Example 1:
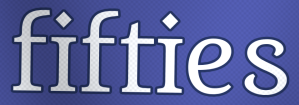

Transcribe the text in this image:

fifties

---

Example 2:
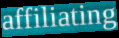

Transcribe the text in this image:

affiliating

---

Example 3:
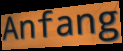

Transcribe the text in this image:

Anfang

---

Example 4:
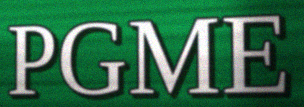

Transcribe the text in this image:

PGME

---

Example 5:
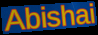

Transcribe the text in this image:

Abishai